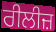
ਰੀਲੀਜ਼